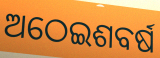
ଅଠେଇଶବର୍ଷ